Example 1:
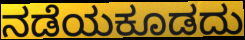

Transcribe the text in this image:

ನಡೆಯಕೂಡದು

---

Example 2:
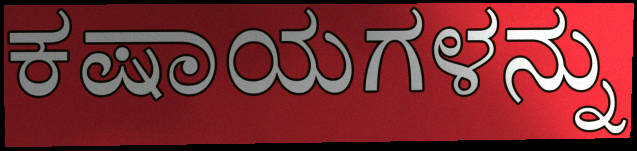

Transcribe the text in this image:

ಕಷಾಯಗಳನ್ನು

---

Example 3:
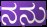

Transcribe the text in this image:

ನನು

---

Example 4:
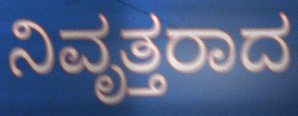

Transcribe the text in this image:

ನಿವೃತ್ತರಾದ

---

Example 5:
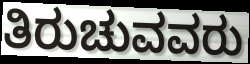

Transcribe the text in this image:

ತಿರುಚುವವರು